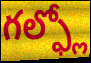
గల్ఫ్లో